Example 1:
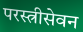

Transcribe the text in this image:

परस्त्रीसेवन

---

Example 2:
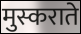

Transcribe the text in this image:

मुस्‍कराते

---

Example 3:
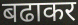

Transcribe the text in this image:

बढाकर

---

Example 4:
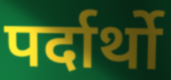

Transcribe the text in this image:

पर्दार्थो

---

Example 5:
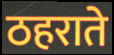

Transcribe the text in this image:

ठहराते